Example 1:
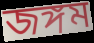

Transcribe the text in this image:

জঙ্গম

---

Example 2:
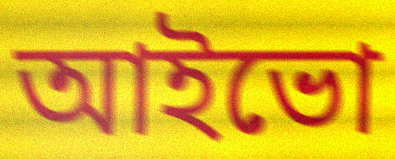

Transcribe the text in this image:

আইভো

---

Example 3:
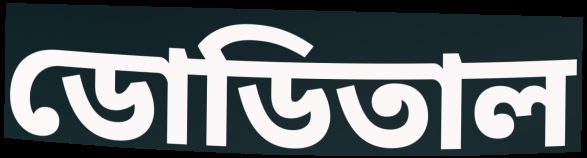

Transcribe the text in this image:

ডোডিতাল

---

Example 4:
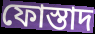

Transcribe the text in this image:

ফোস্তাদ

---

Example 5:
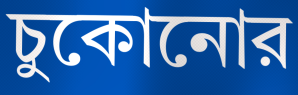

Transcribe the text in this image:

চুকোনোর